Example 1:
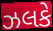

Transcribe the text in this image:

ઝલકે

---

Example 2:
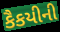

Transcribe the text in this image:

કૈકયીની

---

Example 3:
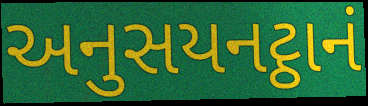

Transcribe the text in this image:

અનુસયનટ્ઠાનં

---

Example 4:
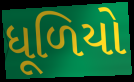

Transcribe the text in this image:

ધૂળિયો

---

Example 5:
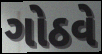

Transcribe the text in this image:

ગોઠવે